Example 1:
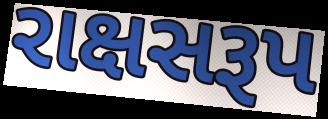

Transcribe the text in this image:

રાક્ષસરૂપ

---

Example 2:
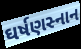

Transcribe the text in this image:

ઘર્ષણસ્નાન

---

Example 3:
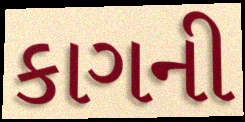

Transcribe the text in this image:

કાગની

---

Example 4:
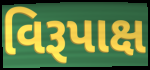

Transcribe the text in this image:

વિરૂપાક્ષ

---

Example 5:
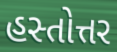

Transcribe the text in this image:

હસ્તોત્તર